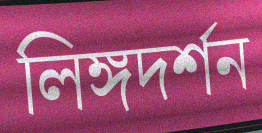
লিঙ্গদর্শন